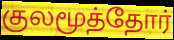
குலமூத்தோர்